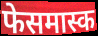
फेसमास्क